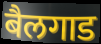
बैलगाड